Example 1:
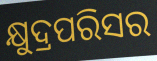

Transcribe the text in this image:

କ୍ଷୁଦ୍ରପରିସର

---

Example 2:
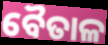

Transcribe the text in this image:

ବୈତାଳ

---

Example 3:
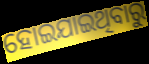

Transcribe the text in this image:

ହୋଇଯାଇଥିବାରୁ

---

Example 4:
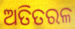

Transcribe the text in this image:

ଅତିତରଳ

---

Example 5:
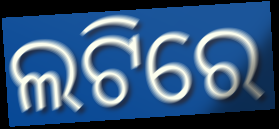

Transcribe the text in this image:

ଲଟିରେ